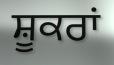
ਸ਼ੂਕਰਾਂ